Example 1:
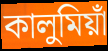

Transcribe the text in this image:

কালুমিয়াঁ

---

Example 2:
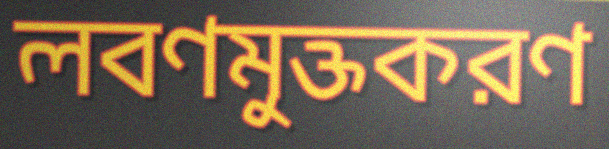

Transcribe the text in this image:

লবণমুক্তকরণ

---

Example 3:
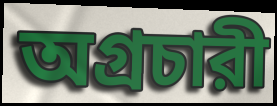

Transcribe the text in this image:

অগ্রচারী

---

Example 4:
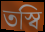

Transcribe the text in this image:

তস্বি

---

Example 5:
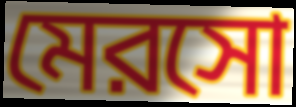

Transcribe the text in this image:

মেরসো